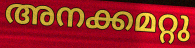
അനക്കമറ്റു